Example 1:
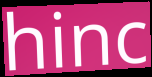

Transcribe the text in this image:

hinc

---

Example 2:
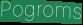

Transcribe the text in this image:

Pogroms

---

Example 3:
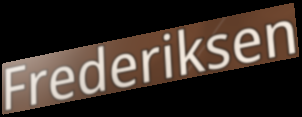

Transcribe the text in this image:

Frederiksen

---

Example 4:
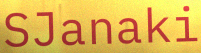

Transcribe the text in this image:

SJanaki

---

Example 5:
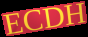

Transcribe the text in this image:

ECDH